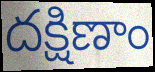
దక్షిణాం